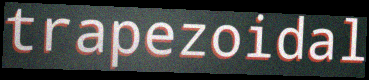
trapezoidal